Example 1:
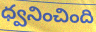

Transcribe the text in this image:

ధ్వనించింది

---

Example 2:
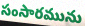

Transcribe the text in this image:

సంసారమును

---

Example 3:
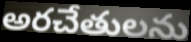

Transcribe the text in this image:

అరచేతులను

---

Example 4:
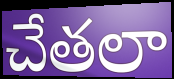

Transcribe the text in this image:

చేతలా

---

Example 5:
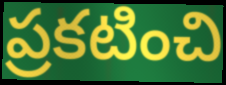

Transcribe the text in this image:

ప్రకటించి